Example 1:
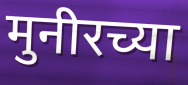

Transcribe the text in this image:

मुनीरच्या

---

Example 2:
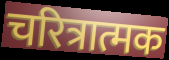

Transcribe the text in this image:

चरित्रात्मक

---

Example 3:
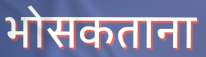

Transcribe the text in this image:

भोसकताना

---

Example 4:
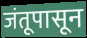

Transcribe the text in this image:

जंतूपासून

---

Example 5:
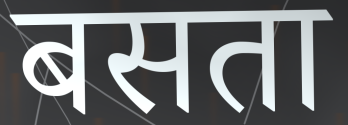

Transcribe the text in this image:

बसता